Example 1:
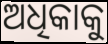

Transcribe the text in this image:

ଅଧିକାକୁ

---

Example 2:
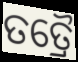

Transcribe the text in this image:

ତତ୍ରୈ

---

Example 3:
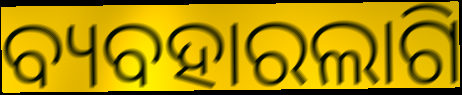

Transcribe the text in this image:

ବ୍ୟବହାରଲାଗି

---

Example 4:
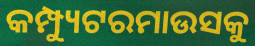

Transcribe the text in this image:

କମ୍ପ୍ୟୁଟରମାଉସକୁ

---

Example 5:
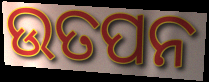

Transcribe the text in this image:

ଉତପନ